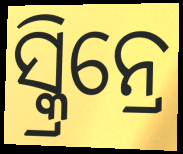
ସ୍କ୍ରିନ୍ରେ